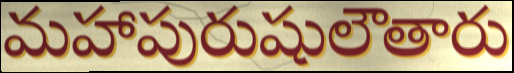
మహాపురుషులౌతారు